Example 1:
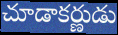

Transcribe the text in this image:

చూడాకర్ణుడు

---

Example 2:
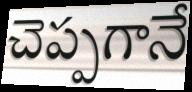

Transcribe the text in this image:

చెప్పగానే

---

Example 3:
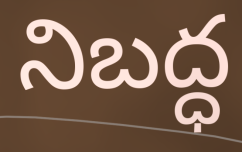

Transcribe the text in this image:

నిబద్ధ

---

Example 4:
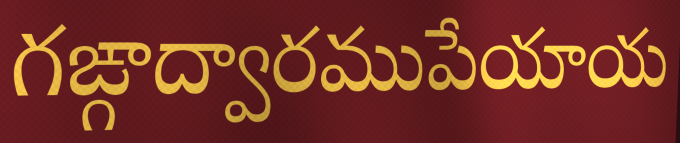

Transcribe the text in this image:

గఙ్గాద్వారముపేయాయ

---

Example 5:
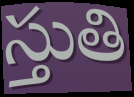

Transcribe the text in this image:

స్తుతి